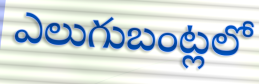
ఎలుగుబంట్లలో